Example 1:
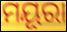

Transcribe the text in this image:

ମୟୂରା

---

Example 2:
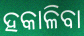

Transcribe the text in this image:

ହକାଳିବା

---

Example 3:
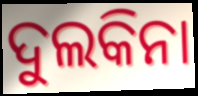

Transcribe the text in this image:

ଦୁଲକିନା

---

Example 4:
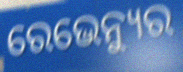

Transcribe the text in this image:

ରେଭେନ୍ୟୁର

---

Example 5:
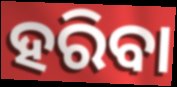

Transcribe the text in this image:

ହରିବା